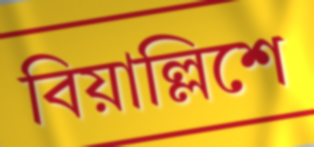
বিয়াল্লিশে